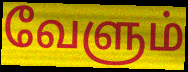
வேளும்